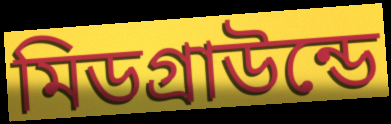
মিডগ্রাউন্ডে